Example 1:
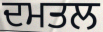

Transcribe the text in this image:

ਦਮਤਲ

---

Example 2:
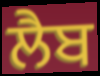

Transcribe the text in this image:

ਲੈਬ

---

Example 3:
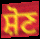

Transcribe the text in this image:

ਸ਼ੋਣ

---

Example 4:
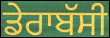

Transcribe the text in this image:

ਡੇਰਾਬੱਸੀ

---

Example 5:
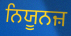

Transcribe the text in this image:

ਨਿਯੂਨਜ਼